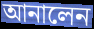
আনালেন